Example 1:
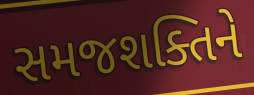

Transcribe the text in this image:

સમજશક્તિને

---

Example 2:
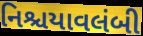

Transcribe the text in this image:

નિશ્ચયાવલંબી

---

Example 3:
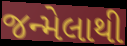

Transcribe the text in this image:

જન્મેલાથી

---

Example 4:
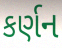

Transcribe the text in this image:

કર્ણન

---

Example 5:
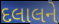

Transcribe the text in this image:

દલાલને